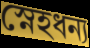
স্নেহধন্য